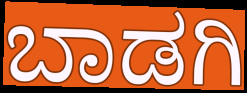
ಬಾಡಗಿ